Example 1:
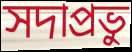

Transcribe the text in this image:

সদাপ্রভু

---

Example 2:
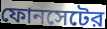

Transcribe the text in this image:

ফোনসেটের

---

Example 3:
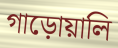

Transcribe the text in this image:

গাড়োয়ালি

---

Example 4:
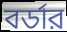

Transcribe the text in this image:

বর্ডার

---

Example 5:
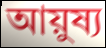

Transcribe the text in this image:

আয়ুষ্য